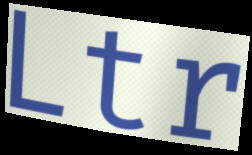
Ltr